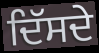
ਦਿੱਸਦੇ